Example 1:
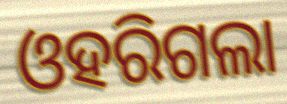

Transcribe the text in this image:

ଓହରିଗଲା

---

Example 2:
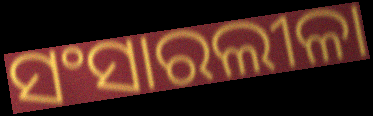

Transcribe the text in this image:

ସଂସାରଲୀଳା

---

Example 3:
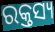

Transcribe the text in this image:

ରକ୍ତସ୍ୟ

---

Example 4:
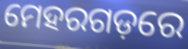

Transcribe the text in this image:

ମେହରଗଡ଼ରେ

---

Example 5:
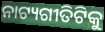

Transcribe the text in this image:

ନାଟ୍ୟଗୀତିଟିକୁ